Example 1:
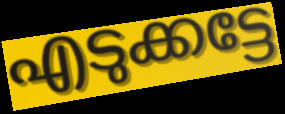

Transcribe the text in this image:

എടുക്കട്ടേ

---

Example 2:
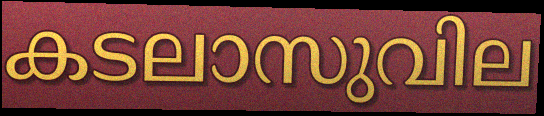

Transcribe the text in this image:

കടലാസുവില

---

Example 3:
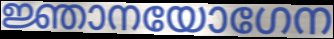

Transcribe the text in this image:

ജ്ഞാനയോഗേന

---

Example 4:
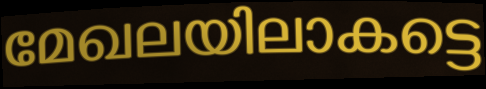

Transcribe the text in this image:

മേഖലയിലാകട്ടെ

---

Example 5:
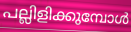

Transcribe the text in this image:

പല്ലിളിക്കുമ്പോൾ